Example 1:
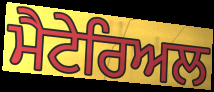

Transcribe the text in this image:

ਮੈਟੇਰਿਅਲ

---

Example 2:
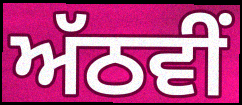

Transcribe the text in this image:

ਅੱਠਵੀੰ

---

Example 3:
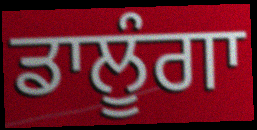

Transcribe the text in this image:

ਡਾਲੂੰਗਾ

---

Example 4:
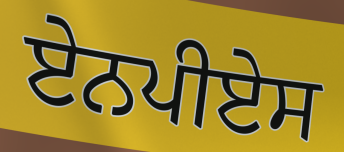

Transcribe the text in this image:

ਏਨਪੀਏਸ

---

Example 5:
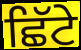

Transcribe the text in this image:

ਛਿੱਟੇ